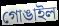
গোঙাইল